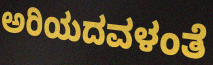
ಅರಿಯದವಳಂತೆ